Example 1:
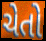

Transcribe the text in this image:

ચેતો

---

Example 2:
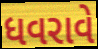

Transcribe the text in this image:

ધવરાવે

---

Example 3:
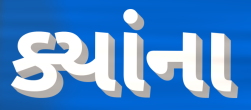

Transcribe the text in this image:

ક્યાંના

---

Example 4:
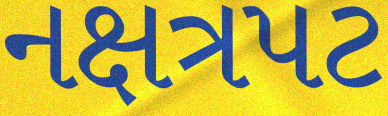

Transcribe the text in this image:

નક્ષત્રપટ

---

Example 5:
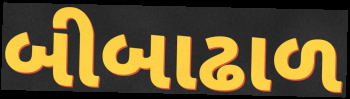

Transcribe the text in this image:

બીબાઢાળ